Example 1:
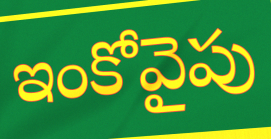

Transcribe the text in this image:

ఇంకోవైపు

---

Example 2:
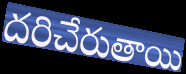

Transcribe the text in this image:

దరిచేరుతాయి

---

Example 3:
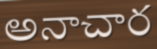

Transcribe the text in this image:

అనాచార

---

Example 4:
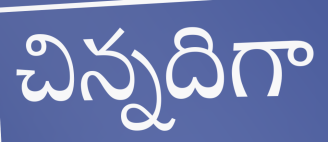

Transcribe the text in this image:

చిన్నదిగా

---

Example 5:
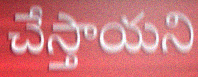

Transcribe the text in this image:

చేస్తాయని